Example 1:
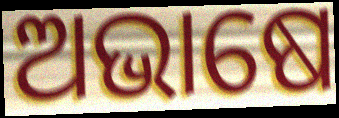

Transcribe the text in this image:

ଅଭାଷେ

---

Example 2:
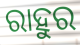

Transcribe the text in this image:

ରାହୁର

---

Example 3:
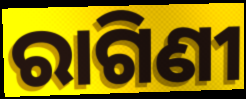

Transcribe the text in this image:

ରାଗିଣୀ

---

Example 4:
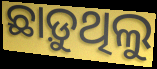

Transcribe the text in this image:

ଛାଡ଼ୁଥିଲୁ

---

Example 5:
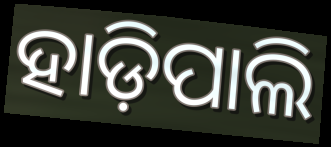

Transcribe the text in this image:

ହାଡ଼ିପାଲି